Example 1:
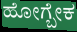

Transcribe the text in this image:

ಹೋಗ್ಬೇಕ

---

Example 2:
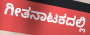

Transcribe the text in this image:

ಗೀತನಾಟಕದಲ್ಲಿ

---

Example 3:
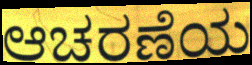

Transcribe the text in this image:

ಆಚರಣೆಯ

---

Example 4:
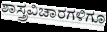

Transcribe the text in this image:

ಶಾಸ್ತ್ರವಿಚಾರಗಳಿಗೂ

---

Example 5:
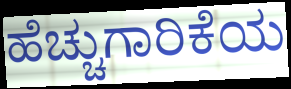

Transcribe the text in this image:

ಹೆಚ್ಚುಗಾರಿಕೆಯ